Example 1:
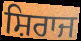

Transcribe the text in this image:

ਸ਼ਿਰਾਜ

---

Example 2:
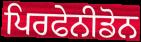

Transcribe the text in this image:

ਪਿਰਫੇਨੀਡੋਨ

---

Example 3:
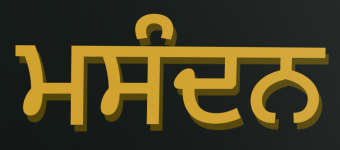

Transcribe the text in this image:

ਮਸੰਦਨ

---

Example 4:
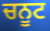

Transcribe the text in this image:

ਚਨੂਟ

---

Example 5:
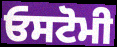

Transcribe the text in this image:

ਓਸਟੋਮੀ